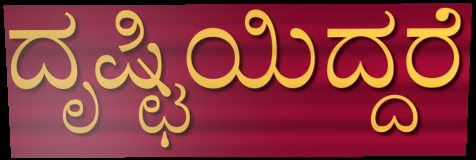
ದೃಷ್ಟಿಯಿದ್ದರೆ